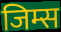
जिम्स